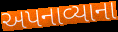
અપનાવ્યાના